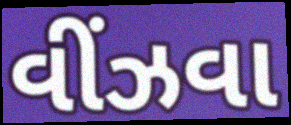
વીંઝવા